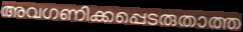
അവഗണിക്കപ്പെടരുതാത്ത